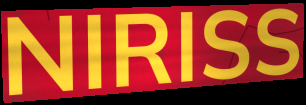
NIRISS